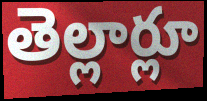
తెల్లార్లూ